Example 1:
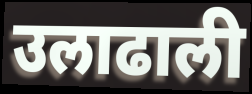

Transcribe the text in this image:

उलाढाली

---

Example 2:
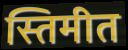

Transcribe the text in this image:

स्तिमीत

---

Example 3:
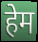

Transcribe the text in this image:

हेम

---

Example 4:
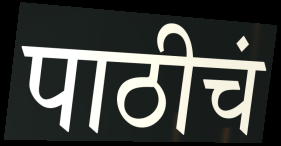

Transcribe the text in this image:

पाठीचं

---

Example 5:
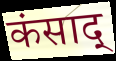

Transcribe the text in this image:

कंसाद्